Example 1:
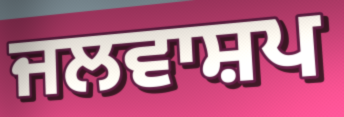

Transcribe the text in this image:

ਜਲਵਾਸ਼ਪ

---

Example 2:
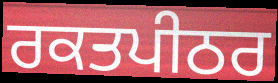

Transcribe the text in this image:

ਰਕਤਪੀਠਰ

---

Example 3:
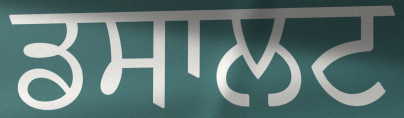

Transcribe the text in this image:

ਡਸਾਲਟ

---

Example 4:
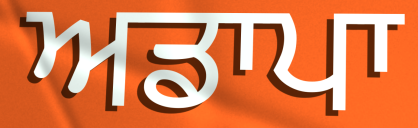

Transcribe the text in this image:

ਅਡਾਪਾ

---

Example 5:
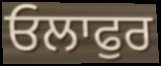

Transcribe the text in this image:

ਓਲਾਫੁਰ